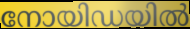
നോയിഡയിൽ